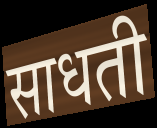
साधती